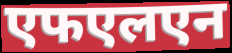
एफएलएन